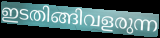
ഇടതിങ്ങിവളരുന്ന